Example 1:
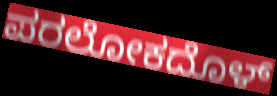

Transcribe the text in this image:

ಪರಲೋಕದೊಳ್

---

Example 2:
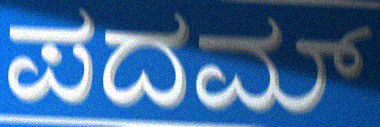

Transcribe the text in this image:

ಪದಮ್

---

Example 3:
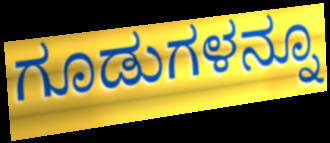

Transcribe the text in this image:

ಗೂಡುಗಳನ್ನೂ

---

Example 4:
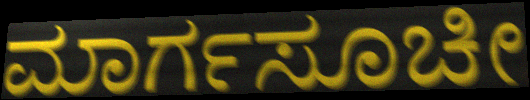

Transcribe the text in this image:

ಮಾರ್ಗಸೂಚೀ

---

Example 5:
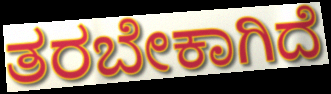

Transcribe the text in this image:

ತರಬೇಕಾಗಿದೆ